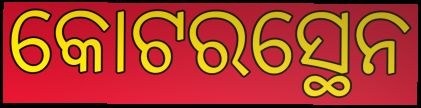
କୋଟରସ୍ଥେନ